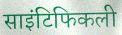
साइंटिफिकली